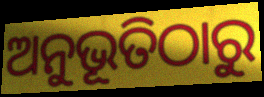
ଅନୁଭୂତିଠାରୁ